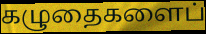
கழுதைகளைப்